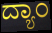
ದ್ಯಾಂ